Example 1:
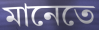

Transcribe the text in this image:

মানেতে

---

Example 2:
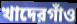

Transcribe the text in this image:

খাদেরগাঁও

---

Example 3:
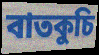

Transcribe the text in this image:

বাতকুচি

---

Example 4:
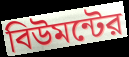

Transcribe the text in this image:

বিউমন্টের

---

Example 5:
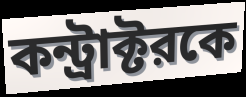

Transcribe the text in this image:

কন্ট্রাক্টরকে